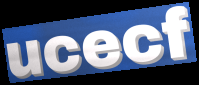
ucecf